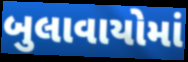
બુલાવાયોમાં